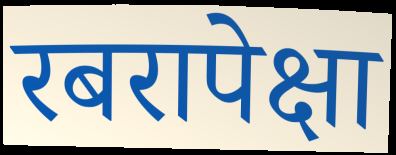
रबरापेक्षा